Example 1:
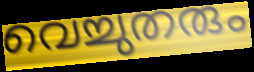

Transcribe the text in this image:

വെച്ചുതരും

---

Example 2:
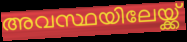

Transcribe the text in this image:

അവസ്ഥയിലേയ്ക്ക്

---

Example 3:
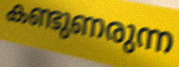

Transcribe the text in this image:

കണ്ടുണരുന്ന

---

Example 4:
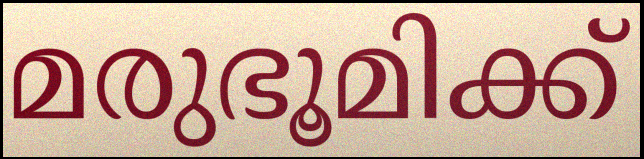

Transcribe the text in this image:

മരുഭൂമിക്ക്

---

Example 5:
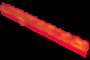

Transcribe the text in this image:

പറയുന്നതൊക്കെ